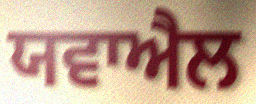
ਯਵਾਐਲ